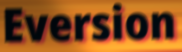
Eversion